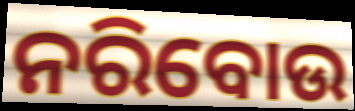
ନରିବୋଉ